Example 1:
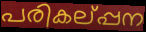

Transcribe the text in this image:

പരികല്പ്പന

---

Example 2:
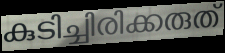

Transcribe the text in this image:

കുടിച്ചിരിക്കരുത്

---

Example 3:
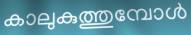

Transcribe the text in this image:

കാലുകുത്തുമ്പോൾ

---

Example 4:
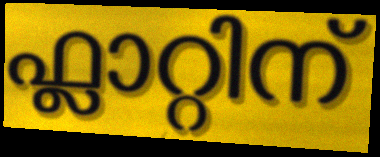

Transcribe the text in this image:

ഫ്ലാറ്റിന്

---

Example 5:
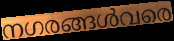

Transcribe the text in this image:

നഗരങ്ങൾവരെ